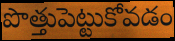
పొత్తుపెట్టుకోవడం